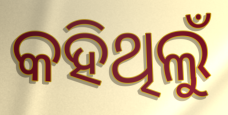
କହିଥିଲୁଁ